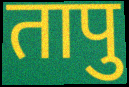
तापु